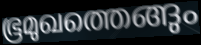
ഭൂമുഖത്തെങ്ങും